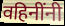
वहिनींनी